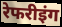
रेफरीइंग